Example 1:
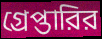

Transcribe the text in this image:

গ্রেপ্তারির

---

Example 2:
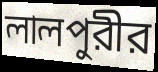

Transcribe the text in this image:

লালপুরীর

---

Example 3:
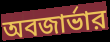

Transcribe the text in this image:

অবজার্ভার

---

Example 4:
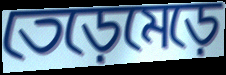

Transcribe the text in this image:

তেড়েমেড়ে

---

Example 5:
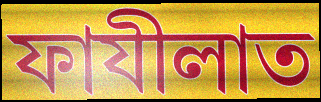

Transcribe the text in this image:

ফাযীলাত